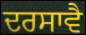
ਦਰਸਾਵੈ